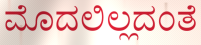
ಮೊದಲಿಲ್ಲದಂತೆ